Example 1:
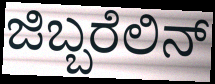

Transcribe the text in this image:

ಜಿಬ್ಬರೆಲಿನ್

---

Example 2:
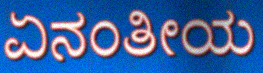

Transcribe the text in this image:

ಏನಂತೀಯ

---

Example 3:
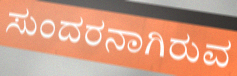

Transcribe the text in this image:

ಸುಂದರನಾಗಿರುವ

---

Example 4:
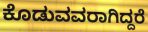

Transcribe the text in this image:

ಕೊಡುವವರಾಗಿದ್ದರೆ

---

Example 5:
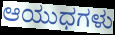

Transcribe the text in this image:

ಆಯುಧಗಳು